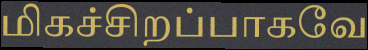
மிகச்சிறப்பாகவே